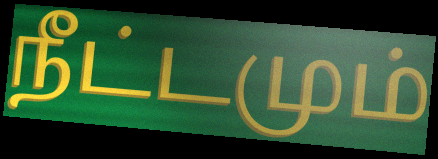
நீட்டமும்